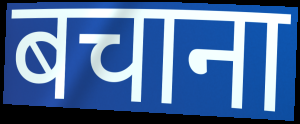
बचाना